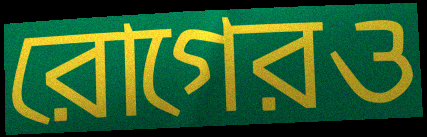
রোগেরও